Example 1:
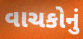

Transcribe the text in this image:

વાચકોનું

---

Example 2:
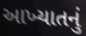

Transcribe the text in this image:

આખ્યાતનું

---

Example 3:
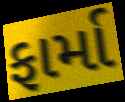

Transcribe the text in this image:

ફાર્મા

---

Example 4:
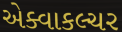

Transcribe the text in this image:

એક્વાકલ્ચર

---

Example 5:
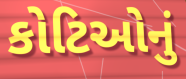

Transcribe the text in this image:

કોટિઓનું